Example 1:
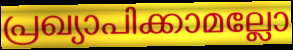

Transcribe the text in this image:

പ്രഖ്യാപിക്കാമല്ലോ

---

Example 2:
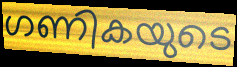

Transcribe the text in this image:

ഗണികയുടെ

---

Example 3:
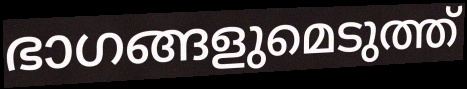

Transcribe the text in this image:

ഭാഗങ്ങളുമെടുത്ത്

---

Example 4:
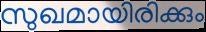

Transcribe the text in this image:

സുഖമായിരിക്കും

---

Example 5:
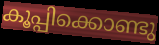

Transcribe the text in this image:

കൂപ്പിക്കൊണ്ടു